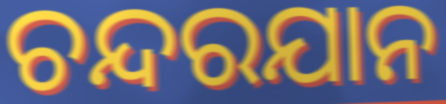
ଚନ୍ଦରଯାନ